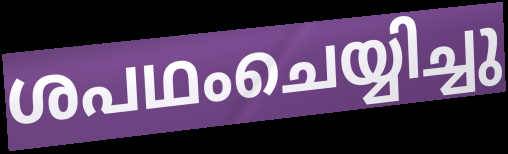
ശപഥംചെയ്യിച്ചു